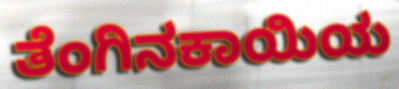
ತೆಂಗಿನಕಾಯಿಯ